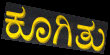
ಕೂಗಿತು